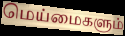
மெய்மைகளும்